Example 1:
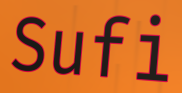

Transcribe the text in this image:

Sufi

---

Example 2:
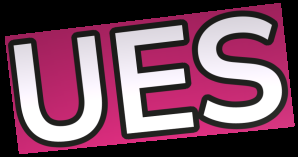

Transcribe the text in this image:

UES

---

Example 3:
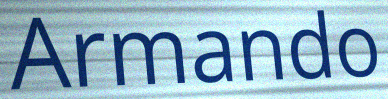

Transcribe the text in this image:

Armando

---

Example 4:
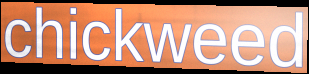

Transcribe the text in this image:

chickweed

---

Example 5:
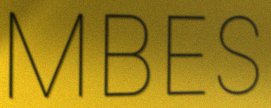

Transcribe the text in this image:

MBES